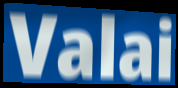
Valai